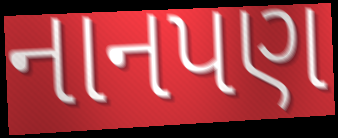
નાનપણ